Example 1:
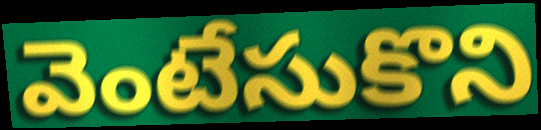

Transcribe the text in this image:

వెంటేసుకొని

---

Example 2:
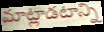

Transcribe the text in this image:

మాట్లాడటాన్ని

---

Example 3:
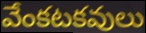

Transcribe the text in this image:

వేంకటకవులు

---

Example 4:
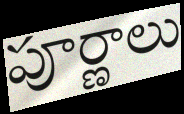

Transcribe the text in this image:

పూర్ణాలు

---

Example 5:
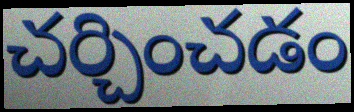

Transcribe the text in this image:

చర్చించడం